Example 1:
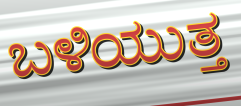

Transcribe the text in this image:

ಬಳಿಯುತ್ತ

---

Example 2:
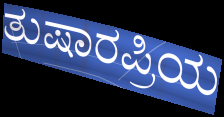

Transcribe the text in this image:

ತುಷಾರಪ್ರಿಯ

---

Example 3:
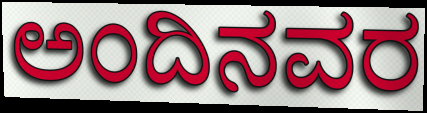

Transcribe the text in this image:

ಅಂದಿನವರ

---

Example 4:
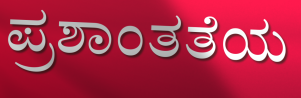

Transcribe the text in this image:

ಪ್ರಶಾಂತತೆಯ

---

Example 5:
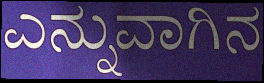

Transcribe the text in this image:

ಎನ್ನುವಾಗಿನ